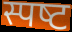
स्‍पष्‍ट